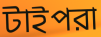
টাইপরা